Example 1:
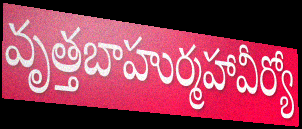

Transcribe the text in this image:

వృత్తబాహుర్మహావీర్యో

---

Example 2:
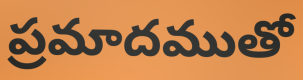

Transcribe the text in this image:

ప్రమాదముతో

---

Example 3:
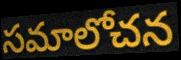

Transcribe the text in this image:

సమాలోచన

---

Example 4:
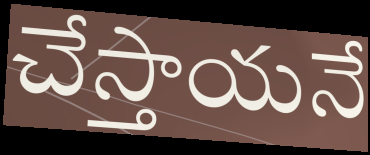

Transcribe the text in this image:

చేస్తాయనే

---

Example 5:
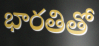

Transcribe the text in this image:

భారతితో